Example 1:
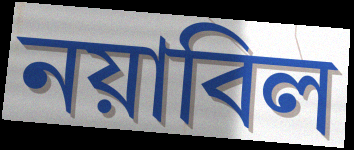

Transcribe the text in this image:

নয়াবিল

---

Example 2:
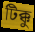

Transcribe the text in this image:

টিক্কু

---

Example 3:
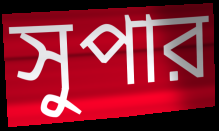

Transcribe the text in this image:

সুপার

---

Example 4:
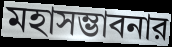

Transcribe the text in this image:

মহাসম্ভাবনার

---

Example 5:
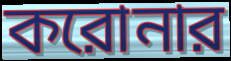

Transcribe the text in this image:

করোনার